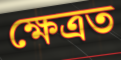
ক্ষেত্ৰত